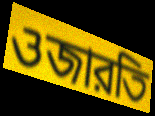
ওজারতি